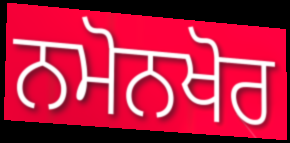
ਨਮੋਨਖੋਰ